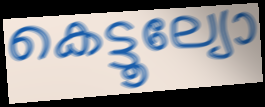
കെട്ടൂല്യോ